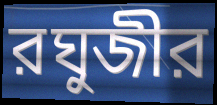
রঘুজীর